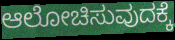
ಆಲೋಚಿಸುವುದಕ್ಕೆ